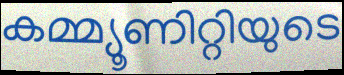
കമ്മ്യൂണിറ്റിയുടെ